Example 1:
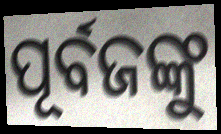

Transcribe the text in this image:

ପୂର୍ବଜଙ୍କୁ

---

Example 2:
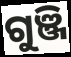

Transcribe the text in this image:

ଗୁଞ୍ଜି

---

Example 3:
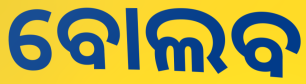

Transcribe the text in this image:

ବୋଲବ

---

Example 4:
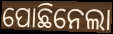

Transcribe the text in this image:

ପୋଛିନେଲା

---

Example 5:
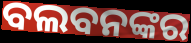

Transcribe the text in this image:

ବଲବନଙ୍କର